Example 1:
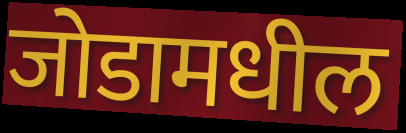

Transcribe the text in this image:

जोडामधील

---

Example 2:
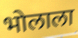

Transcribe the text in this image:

भोलाला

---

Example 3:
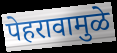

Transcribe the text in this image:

पेहरावामुळे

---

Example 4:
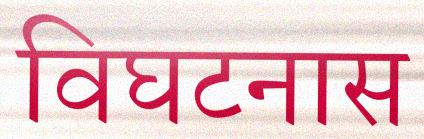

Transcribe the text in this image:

विघटनास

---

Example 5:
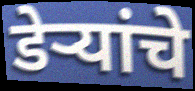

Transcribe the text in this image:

डेर्‍यांचे